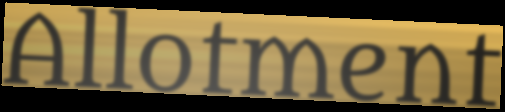
Allotment